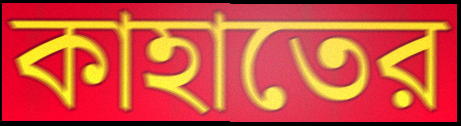
কাহাতের